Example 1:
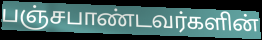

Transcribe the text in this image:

பஞ்சபாண்டவர்களின்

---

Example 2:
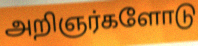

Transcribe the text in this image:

அறிஞர்களோடு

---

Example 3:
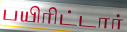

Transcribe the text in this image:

பயிரிட்டார்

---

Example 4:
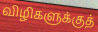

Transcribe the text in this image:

விழிகளுக்குத்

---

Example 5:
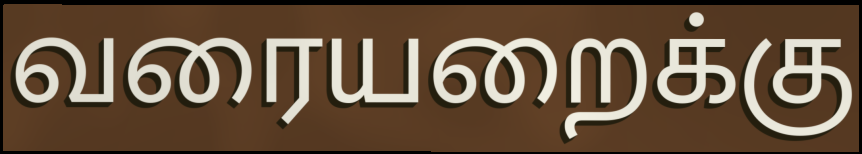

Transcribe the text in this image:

வரையறைக்கு